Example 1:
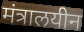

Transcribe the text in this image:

मंत्रालयीन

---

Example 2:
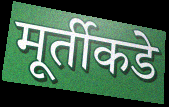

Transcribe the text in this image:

मूर्तीकडे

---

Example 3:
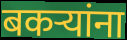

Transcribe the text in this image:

बकर्‍यांना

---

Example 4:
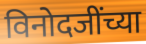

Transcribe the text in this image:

विनोदजींच्या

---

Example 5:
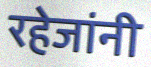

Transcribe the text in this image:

रहेजांनी